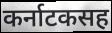
कर्नाटकसह